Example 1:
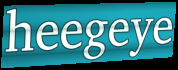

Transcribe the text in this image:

heegeye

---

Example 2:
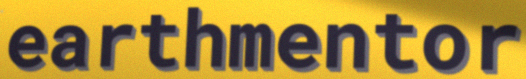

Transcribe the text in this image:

earthmentor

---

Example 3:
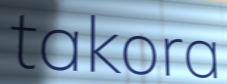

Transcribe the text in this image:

takora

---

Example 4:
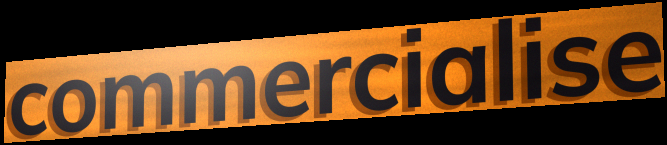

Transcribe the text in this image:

commercialise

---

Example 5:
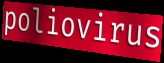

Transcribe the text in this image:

poliovirus